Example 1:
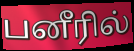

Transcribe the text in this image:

பனீரில்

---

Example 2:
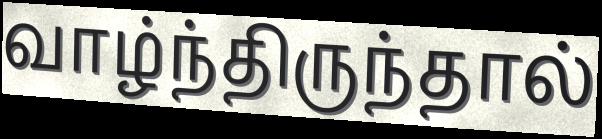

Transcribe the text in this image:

வாழ்ந்திருந்தால்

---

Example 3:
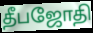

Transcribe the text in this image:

தீபஜோதி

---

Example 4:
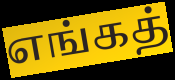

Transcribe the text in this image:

எங்கத்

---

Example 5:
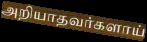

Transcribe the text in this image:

அறியாதவர்களாய்